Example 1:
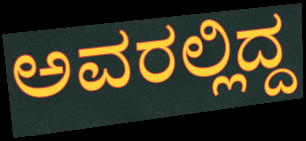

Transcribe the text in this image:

ಅವರಲ್ಲಿದ್ದ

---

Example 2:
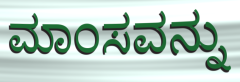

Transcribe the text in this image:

ಮಾಂಸವನ್ನು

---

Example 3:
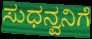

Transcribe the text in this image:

ಸುಧನ್ವನಿಗೆ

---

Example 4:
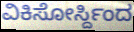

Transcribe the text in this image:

ವಿಕಿಸೋರ್ಸ್ದಿಂದ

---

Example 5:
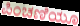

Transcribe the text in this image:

ಪಿಂಚಣಿಯೂ